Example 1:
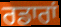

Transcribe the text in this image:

ਰਡਾਰਾਂ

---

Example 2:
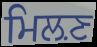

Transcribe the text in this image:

ਮਿਲ਼ਣ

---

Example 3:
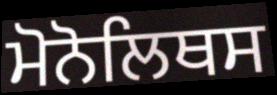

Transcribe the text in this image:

ਮੋਨੋਲਿਥਸ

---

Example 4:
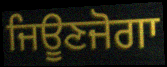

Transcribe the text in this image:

ਜਿਊਣਜੋਗਾ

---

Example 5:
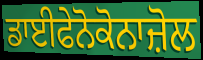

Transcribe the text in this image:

ਡਾਈਫੇਨੋਕੋਨਾਜ਼ੋਲ